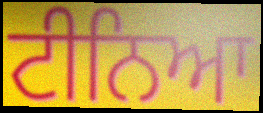
ਟੀਨਿਆ